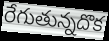
రేగుతున్నదొక